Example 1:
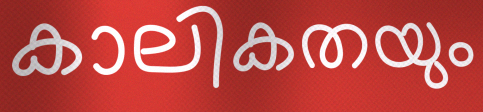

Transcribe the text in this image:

കാലികതയും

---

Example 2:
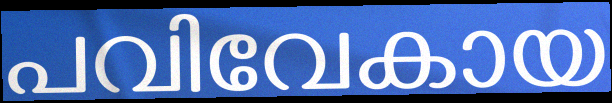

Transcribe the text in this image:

പവിവേകായ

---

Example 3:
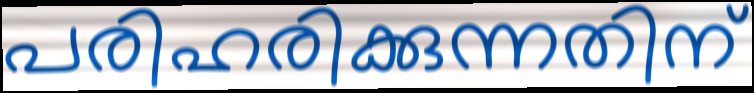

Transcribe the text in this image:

പരിഹരിക്കുന്നതിന്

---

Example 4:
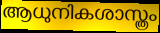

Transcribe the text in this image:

ആധുനികശാസ്ത്രം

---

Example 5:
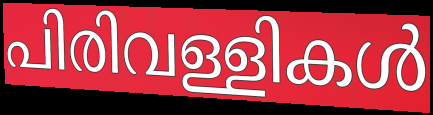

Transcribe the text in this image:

പിരിവള്ളികൾ